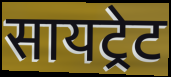
सायट्रेट